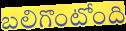
బలిగొంటోంది